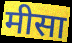
मीसा